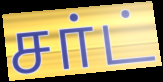
சர்ட்